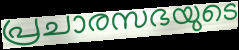
പ്രചാരസഭയുടെ